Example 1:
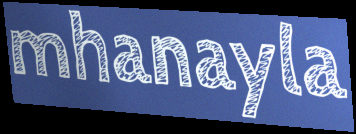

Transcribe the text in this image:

mhanayla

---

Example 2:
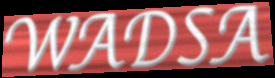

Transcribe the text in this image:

WADSA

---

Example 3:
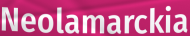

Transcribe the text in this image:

Neolamarckia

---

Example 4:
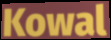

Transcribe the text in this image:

Kowal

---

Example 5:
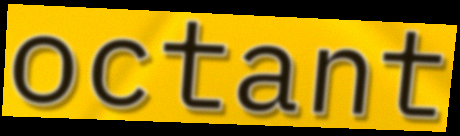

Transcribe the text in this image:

octant